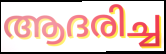
ആദരിച്ച